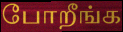
போறீங்க